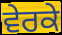
ਵੇਰਕੇ